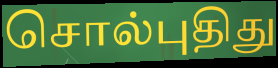
சொல்புதிது